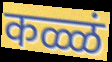
कळ्ळं